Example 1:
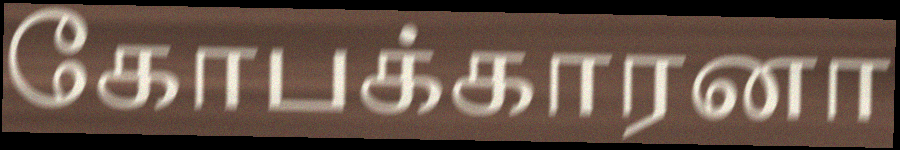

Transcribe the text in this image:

கோபக்காரனா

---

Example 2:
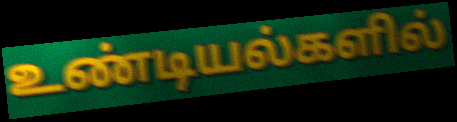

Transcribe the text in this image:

உண்டியல்களில்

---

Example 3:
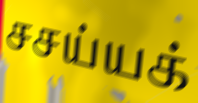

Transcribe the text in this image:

சசய்யக்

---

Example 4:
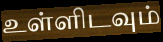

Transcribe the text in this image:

உள்ளிடவும்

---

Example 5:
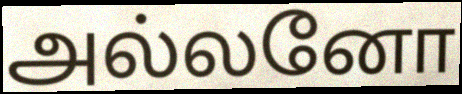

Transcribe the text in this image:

அல்லனோ